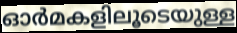
ഓർമകളിലൂടെയുള്ള